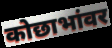
कोछाभांवर